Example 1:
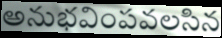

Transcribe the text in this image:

అనుభవింపవలసిన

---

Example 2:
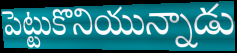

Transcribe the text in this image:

పెట్టుకొనియున్నాడు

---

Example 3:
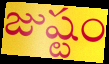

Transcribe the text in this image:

జుష్టం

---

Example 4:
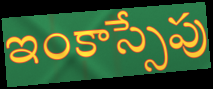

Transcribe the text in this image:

ఇంకాస్సేపు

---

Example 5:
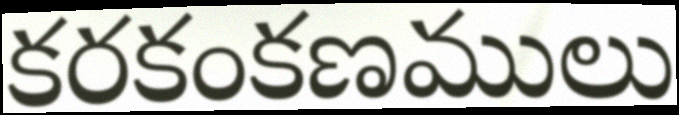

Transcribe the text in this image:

కరకంకణములు